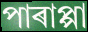
পাৰাপ্পা